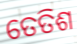
ତେତିଶ